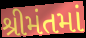
શ્રીમંતમાં